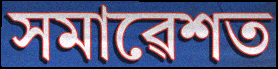
সমাৱেশত